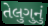
તેલુગુનું